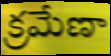
క్రమేణా